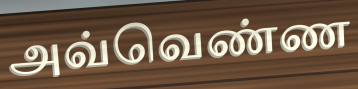
அவ்வெண்ண